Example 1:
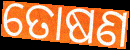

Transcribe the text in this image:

ତୋଷଣ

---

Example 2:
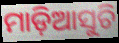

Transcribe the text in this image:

ମାଡ଼ିଆସୁଚି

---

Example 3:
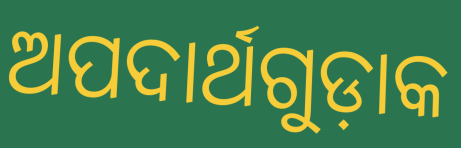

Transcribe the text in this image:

ଅପଦାର୍ଥଗୁଡ଼ାକ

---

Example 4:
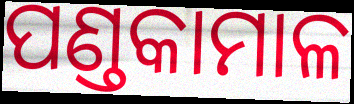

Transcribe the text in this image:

ପଣ୍ଡକାମାଳ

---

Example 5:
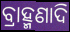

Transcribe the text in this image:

ବ୍ରାହ୍ମଣାଦି